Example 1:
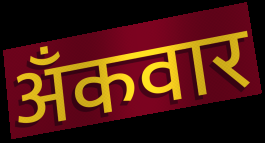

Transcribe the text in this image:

अँकवार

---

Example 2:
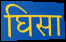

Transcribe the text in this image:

घिसा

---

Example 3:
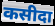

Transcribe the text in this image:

कसीदा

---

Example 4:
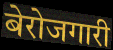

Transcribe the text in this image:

बेरोजगारी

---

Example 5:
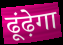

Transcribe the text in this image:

ढूंढ़ेगा